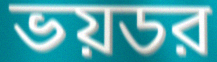
ভয়ডর